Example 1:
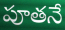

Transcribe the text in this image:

పూతనే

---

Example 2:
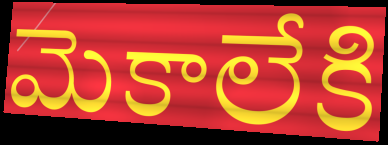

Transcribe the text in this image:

మెకాలేకి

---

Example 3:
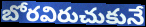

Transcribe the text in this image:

బోరవిరుచుకునే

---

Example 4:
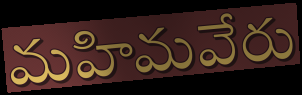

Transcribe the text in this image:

మహిమవేరు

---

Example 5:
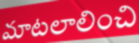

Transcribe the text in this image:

మాటలాలించి